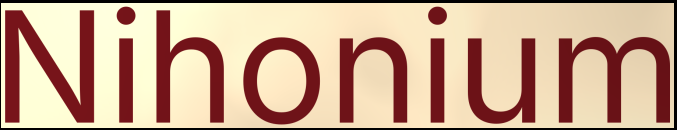
Nihonium